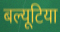
बल्यूटिया